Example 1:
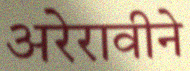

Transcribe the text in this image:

अरेरावीने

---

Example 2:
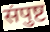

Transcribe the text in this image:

संपुष्ट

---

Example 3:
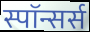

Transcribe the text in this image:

स्पॉन्सर्स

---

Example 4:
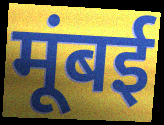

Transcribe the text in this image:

मूंबई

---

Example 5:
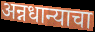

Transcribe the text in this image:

अन्नधान्याचा